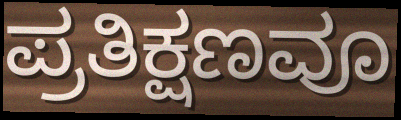
ಪ್ರತಿಕ್ಷಣವೂ